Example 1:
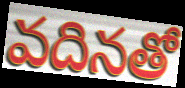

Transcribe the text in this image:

వదినతో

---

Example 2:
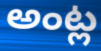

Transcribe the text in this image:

అంట్ల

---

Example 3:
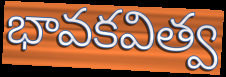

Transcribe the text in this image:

భావకవిత్వ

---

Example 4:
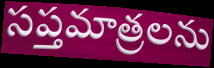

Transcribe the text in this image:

సప్తమాత్రలను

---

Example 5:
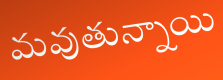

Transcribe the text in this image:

మవుతున్నాయి